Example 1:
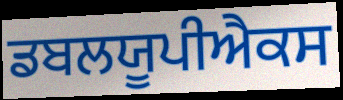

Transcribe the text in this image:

ਡਬਲਯੂਪੀਐਕਸ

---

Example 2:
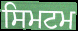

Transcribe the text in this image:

ਸਿਮਟਮ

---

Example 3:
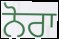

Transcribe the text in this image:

ਨੋਰਾ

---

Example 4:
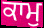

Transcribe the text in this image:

ਕਾਮੁ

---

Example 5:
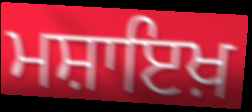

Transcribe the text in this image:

ਮਸ਼ਾਇਖ਼